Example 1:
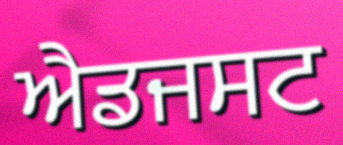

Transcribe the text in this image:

ਐਡਜਸਟ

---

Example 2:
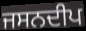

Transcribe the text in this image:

ਜਸਨਦੀਪ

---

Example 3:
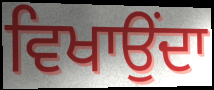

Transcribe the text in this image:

ਵਿਖਾਉਂਦਾ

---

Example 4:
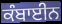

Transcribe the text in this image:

ਕੰਬਾਈਨ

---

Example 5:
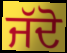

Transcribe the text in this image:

ਜੱਦੋ